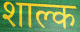
शाल्क